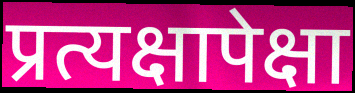
प्रत्यक्षापेक्षा